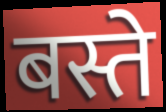
बस्ते